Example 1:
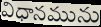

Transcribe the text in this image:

విధానమును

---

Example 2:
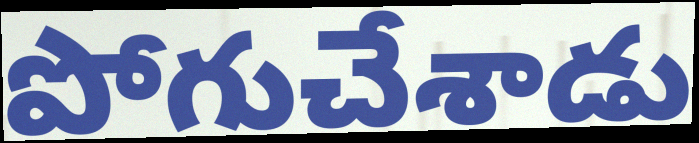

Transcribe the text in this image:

పోగుచేశాడు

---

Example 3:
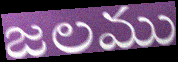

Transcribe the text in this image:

జలము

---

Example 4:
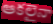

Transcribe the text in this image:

ఆకలైనా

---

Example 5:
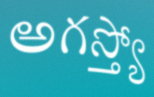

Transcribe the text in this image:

అగస్త్యో